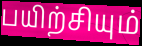
பயிற்சியும்